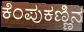
ಕೆಂಪುಕಣ್ಣಿನ